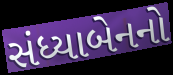
સંધ્યાબેનનો